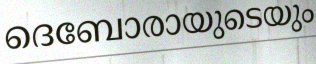
ദെബോരായുടെയും